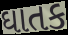
ઘાતક